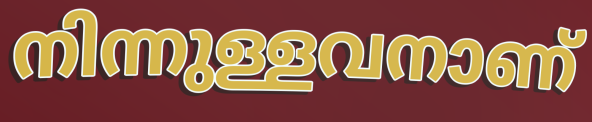
നിന്നുള്ളവനാണ്